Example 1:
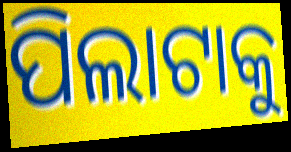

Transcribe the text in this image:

ପିଲାଟାକୁ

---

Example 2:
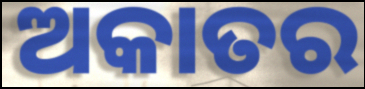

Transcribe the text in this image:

ଅକାତର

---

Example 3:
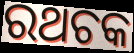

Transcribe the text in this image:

ରଥଚକ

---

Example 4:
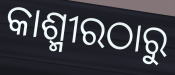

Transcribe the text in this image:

କାଶ୍ମୀରଠାରୁ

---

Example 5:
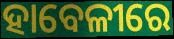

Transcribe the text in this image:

ହାବେଳୀରେ